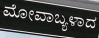
ಮೋವಾಬ್ಯಳಾದ